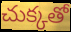
చుక్కతో